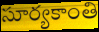
సూర్యకాంతి